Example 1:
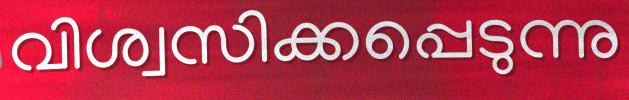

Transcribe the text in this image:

വിശ്വസിക്കപ്പെടുന്നു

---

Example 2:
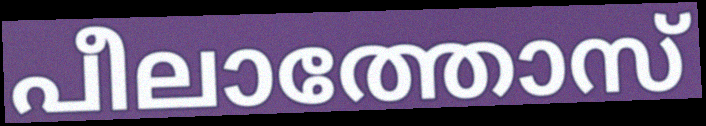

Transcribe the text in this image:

പീലാത്തോസ്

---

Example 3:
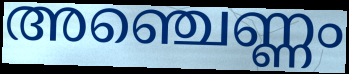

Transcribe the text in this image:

അഞ്ചെണ്ണം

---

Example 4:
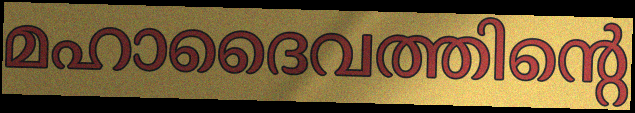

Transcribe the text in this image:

മഹാദൈവത്തിന്റെ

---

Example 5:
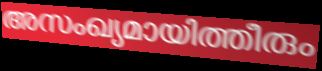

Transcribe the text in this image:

അസംഖ്യമായിത്തീരും